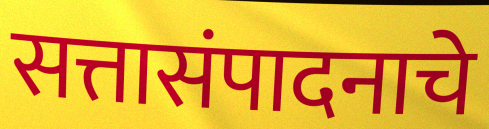
सत्तासंपादनाचे